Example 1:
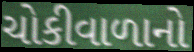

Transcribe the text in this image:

ચોકીવાળાનો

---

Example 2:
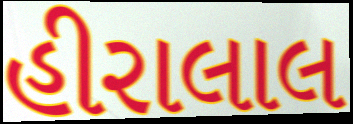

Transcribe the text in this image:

હીરાલાલ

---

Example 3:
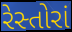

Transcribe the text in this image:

રેસ્તોરાં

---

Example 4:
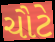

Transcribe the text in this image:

ચૌટે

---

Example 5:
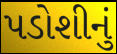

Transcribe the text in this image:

પડોશીનું